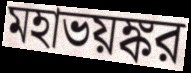
মহাভয়ঙ্কর